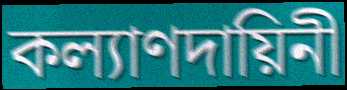
কল্যাণদায়িনী